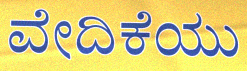
ವೇದಿಕೆಯು